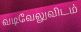
வடிவேலுவிடம்